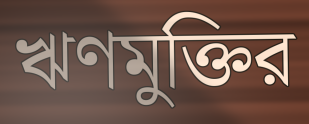
ঋণমুক্তির